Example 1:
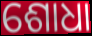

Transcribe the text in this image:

ଶୋଧା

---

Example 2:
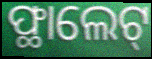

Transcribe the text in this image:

ଫ୍ଥାଲେଟ୍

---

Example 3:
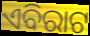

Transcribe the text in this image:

ଏବିରାଟ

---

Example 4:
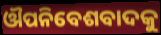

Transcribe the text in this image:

ଔପନିବେଶବାଦକୁ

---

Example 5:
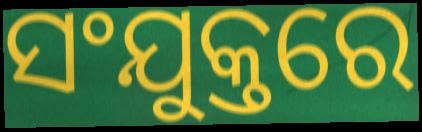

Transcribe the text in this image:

ସଂଯୁକ୍ତରେ